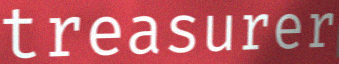
treasurer